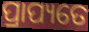
ପ୍ରାପ୍ୟତେ